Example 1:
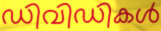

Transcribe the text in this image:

ഡിവിഡികൾ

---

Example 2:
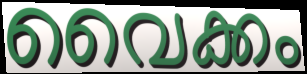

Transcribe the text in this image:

വൈക്കം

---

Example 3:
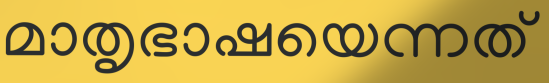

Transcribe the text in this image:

മാതൃഭാഷയെന്നത്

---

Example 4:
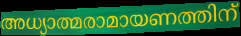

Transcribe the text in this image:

അധ്യാത്മരാമായണത്തിന്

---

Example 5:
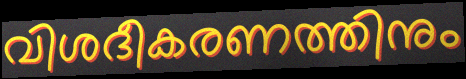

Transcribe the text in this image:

വിശദീകരണത്തിനും